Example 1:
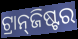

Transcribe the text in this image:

ଟ୍ରାନ୍‍ଜିଷ୍ଟର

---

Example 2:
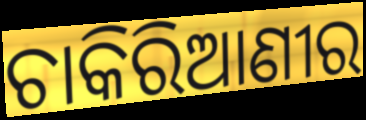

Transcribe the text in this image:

ଚାକିରିଆଣୀର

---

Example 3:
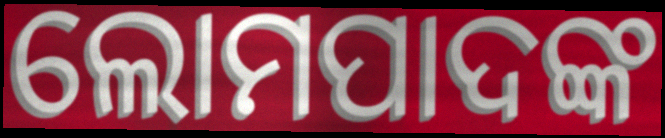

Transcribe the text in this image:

ଲୋମପାଦଙ୍କ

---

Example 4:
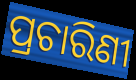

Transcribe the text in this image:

ପ୍ରଚାରିଣୀ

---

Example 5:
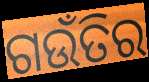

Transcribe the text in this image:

ଗଉଁତିର